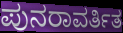
ಪುನರಾವರ್ತಿತ